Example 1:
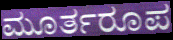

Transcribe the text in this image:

ಮೂರ್ತರೂಪ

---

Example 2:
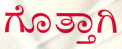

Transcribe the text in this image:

ಗೊತ್ತಾಗಿ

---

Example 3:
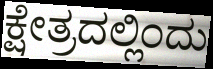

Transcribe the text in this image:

ಕ್ಷೇತ್ರದಲ್ಲಿಂದು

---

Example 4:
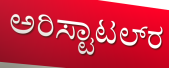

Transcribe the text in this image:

ಅರಿಸ್ಟಾಟಲ್‍ರ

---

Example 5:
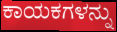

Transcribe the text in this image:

ಕಾಯಕಗಳನ್ನು